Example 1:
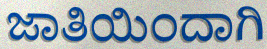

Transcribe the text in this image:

ಜಾತಿಯಿಂದಾಗಿ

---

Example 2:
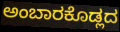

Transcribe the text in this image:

ಅಂಬಾರಕೊಡ್ಲದ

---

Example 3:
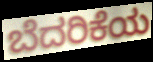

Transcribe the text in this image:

ಬೆದರಿಕೆಯ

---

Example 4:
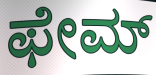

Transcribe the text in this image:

ಫೇಮ್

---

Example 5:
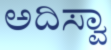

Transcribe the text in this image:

ಅದಿಸ್ವಾ